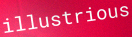
illustrious